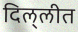
दिल्लीत